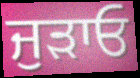
ਜੁੜਾਓ